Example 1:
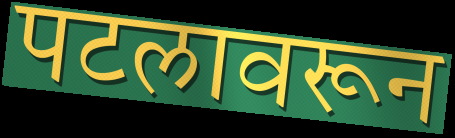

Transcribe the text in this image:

पटलावरून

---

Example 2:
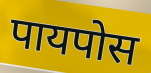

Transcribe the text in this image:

पायपोस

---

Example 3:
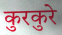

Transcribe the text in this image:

कुरकुरे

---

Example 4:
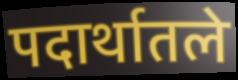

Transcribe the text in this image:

पदार्थातले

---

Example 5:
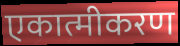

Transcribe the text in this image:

एकात्मीकरण